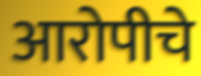
आरोपीचे